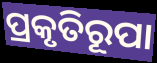
ପ୍ରକୃତିରୂପା